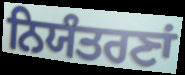
ਨਿਯੰਤਰਣਾਂ